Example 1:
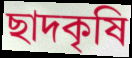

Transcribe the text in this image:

ছাদকৃষি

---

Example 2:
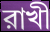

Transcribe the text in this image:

রাখী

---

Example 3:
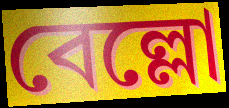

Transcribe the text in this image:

বেল্লো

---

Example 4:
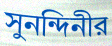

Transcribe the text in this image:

সুনন্দিনীর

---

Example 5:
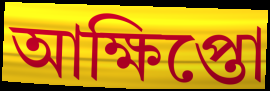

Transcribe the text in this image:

আক্ষিপ্তো